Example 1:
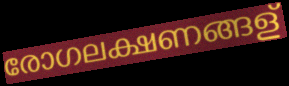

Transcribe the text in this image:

രോഗലക്ഷണങ്ങള്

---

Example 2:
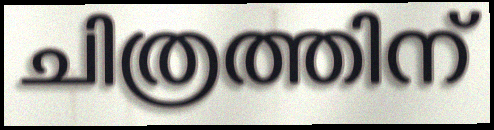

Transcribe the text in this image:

ചിത്രത്തിന്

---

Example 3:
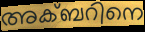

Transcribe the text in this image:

അക്ബറിനെ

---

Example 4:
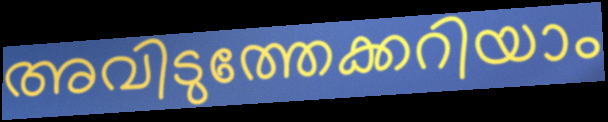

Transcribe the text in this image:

അവിടുത്തേക്കറിയാം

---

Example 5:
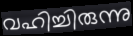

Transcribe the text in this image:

വഹിച്ചിരുന്നു